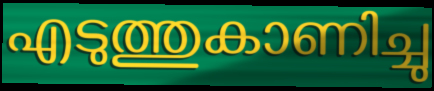
എടുത്തുകാണിച്ചു